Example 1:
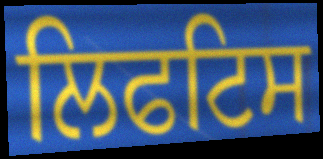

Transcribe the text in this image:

ਲਿਫਟਿਸ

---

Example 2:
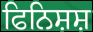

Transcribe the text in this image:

ਫਿਨਿਸ਼ਸ਼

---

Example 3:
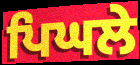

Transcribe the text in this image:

ਪਿਘਲੇ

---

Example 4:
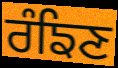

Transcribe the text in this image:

ਰੰਙਿਣ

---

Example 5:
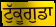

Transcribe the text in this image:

ਟੁੱਕੂਗੁਡਾ